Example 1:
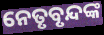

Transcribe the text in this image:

ନେତୃବୃନ୍ଦଙ୍କ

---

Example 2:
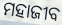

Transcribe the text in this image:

ମହାଜୀବ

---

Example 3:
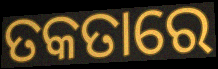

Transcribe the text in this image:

ତକତାରେ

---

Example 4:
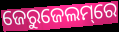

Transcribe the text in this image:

ଜେରୁଜେଲମ୍‌ରେ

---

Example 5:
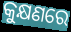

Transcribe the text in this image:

କୁକ୍ଷଣରେ